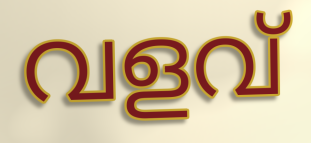
വളവ്